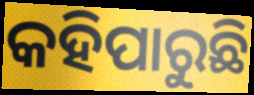
କହିପାରୁଛି